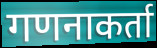
गणनाकर्ता